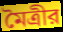
মৈত্রীর